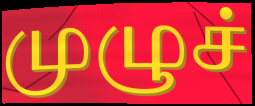
முழுச்